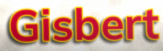
Gisbert